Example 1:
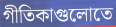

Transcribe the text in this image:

গীতিকাগুলোতে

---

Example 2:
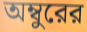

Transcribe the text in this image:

অম্বুরের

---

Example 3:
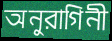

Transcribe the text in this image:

অনুরাগিনী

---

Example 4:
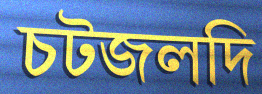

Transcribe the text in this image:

চটজলদি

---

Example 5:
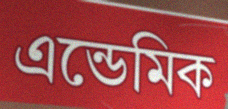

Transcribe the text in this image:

এন্ডেমিক